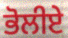
ਭੋਲੀਏ